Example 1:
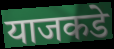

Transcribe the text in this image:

याजकडे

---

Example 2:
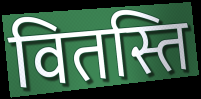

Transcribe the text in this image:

वितस्ति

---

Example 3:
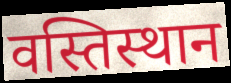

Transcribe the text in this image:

वस्तिस्थान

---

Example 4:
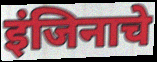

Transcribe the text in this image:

इंजिनाचे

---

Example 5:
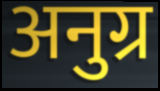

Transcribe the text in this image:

अनुग्र